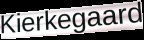
Kierkegaard